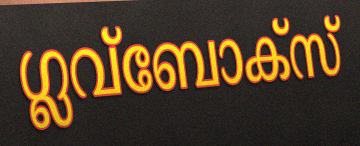
ഗ്ലവ്ബോക്സ്